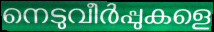
നെടുവീർപ്പുകളെ